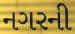
નગરની